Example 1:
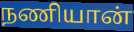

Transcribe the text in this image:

நணியான்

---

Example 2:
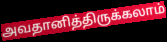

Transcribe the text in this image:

அவதானித்திருக்கலாம்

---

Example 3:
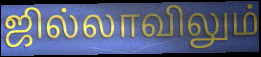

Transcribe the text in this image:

ஜில்லாவிலும்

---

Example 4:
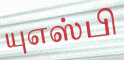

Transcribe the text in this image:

யுஎஸ்பி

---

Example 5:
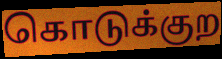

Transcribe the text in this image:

கொடுக்குற